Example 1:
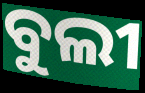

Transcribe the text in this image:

ବୁଲୀ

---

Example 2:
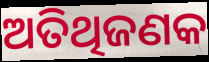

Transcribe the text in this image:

ଅତିଥିଜଣକ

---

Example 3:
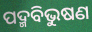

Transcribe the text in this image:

ପଦ୍ମବିଭୁଷଣ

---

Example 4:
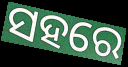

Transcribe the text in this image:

ସହରେ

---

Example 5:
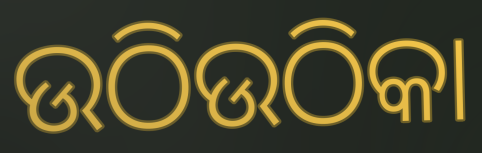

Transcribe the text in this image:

ଉଠିଉଠିକା